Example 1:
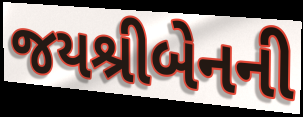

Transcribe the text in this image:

જયશ્રીબેનની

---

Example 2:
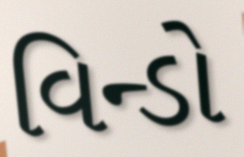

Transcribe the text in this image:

વિન્ડો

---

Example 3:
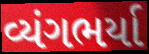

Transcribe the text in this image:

વ્યંગભર્યા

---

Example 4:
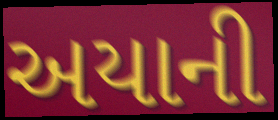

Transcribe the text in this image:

અયાની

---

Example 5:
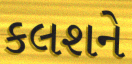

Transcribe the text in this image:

કલશને